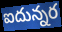
ఐదున్నర